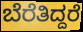
ಬೆರೆತಿದ್ದರೆ